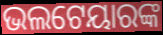
ଭଲଟେୟାରଙ୍କ